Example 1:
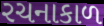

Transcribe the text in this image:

રચનાકાળ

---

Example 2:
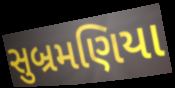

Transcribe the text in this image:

સુબ્રમણિયા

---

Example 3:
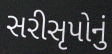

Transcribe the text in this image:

સરીસૃપોનું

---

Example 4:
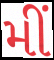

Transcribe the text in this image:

મીં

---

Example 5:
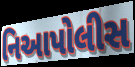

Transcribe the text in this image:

નિઆપોલીસ